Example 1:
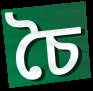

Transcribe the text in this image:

চৈ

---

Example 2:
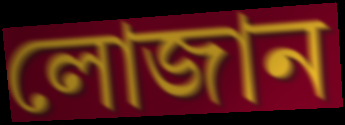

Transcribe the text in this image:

লোজান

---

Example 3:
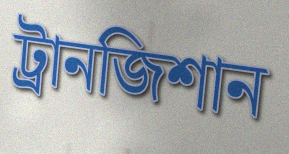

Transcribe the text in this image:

ট্রানজিশান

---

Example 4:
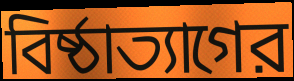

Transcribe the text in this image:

বিষ্ঠাত্যাগের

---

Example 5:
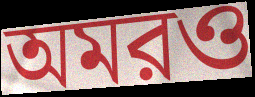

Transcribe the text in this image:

অমরও